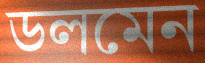
ডলমেন